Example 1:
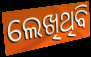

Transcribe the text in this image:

ଲେଖିଥିବି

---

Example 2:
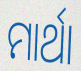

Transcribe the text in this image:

ମାର୍ଥା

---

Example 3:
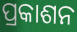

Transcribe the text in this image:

ପ୍ରକାଶନ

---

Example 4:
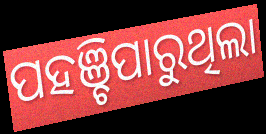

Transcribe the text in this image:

ପହଞ୍ଚିପାରୁଥିଲା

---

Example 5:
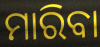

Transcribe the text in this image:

ମାରିବା